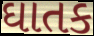
ઘાતક